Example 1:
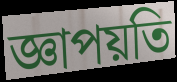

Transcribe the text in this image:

জ্ঞাপয়তি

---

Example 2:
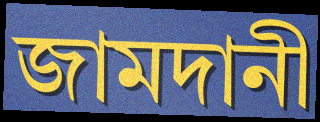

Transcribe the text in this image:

জামদানী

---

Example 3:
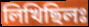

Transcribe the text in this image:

লিখিছিলঃ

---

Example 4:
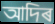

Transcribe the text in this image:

আদিৰ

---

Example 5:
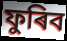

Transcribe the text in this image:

ফুৰিব